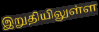
இறுதியிலுள்ள